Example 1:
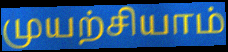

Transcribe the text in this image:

முயற்சியாம்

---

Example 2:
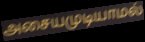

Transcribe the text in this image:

அசையமுடியாமல்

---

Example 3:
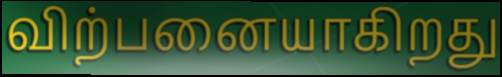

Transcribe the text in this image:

விற்பனையாகிறது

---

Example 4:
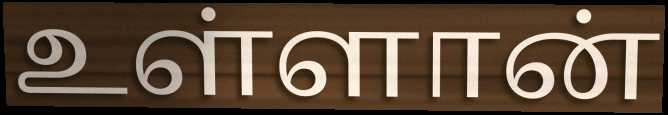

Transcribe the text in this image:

உள்ளான்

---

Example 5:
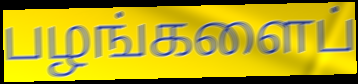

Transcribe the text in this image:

பழங்களைப்